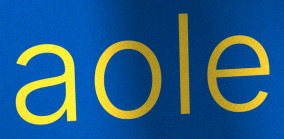
aole